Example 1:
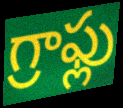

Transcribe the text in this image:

గ్రాఫ్లు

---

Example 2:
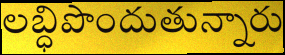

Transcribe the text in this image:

లబ్ధిపొందుతున్నారు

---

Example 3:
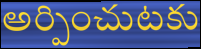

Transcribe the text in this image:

అర్పించుటకు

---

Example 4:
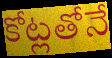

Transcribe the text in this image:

కోట్లతోనే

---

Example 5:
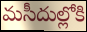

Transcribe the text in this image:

మసీదుల్లోకి